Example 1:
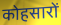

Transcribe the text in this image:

कोहसारों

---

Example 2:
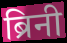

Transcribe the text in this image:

ब्रिनी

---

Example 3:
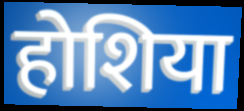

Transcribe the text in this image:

होशिया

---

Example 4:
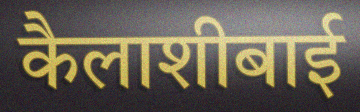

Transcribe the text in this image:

कैलाशीबाई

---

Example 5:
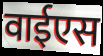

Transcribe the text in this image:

वाईएस